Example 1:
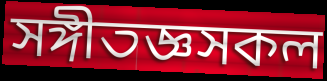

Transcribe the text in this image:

সঙ্গীতজ্ঞসকল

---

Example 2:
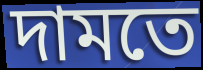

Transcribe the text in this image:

দামতে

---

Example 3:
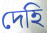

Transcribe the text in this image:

দেহি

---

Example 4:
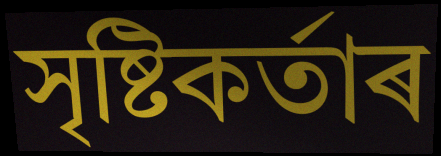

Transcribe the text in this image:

সৃষ্টিকৰ্তাৰ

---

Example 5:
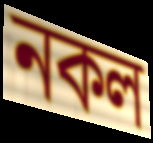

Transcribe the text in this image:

নকল